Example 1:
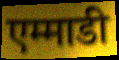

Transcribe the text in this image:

एम्माडी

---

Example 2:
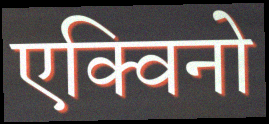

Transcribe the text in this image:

एक्विनो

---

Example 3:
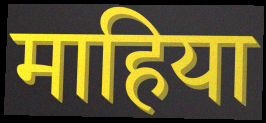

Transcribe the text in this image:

माहिया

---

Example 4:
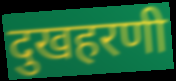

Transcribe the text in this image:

दुखहरणी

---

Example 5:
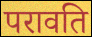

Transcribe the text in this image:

परावति